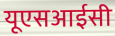
यूएसआईसी